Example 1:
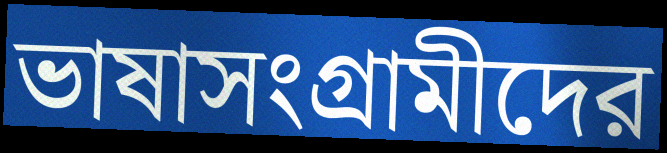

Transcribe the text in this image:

ভাষাসংগ্রামীদের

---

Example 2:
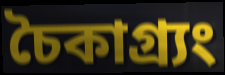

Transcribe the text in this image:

চৈকাগ্র্যং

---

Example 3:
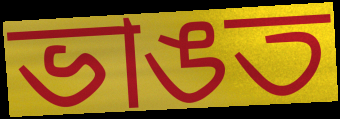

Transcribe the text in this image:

ভাঙত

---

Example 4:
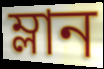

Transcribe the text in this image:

ম্লান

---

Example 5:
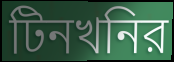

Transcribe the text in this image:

টিনখনির